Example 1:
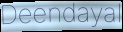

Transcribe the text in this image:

Deendayal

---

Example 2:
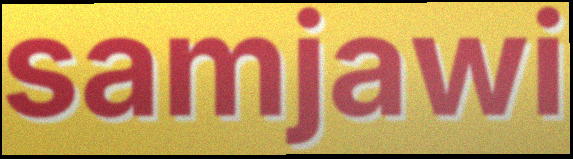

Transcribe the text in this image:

samjawi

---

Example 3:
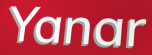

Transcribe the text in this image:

Yanar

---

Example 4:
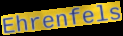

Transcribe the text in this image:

Ehrenfels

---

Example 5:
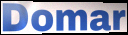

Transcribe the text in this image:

Domar